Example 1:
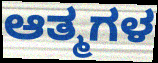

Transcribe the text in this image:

ಆತ್ಮಗಳ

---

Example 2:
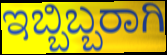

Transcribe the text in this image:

ಇಬ್ಬಿಬ್ಬರಾಗಿ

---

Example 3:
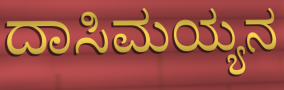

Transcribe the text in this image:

ದಾಸಿಮಯ್ಯನ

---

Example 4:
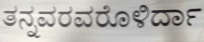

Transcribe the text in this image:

ತನ್ನವರವರೊಳಿರ್ದಾ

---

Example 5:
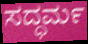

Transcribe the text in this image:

ಸದ್ಧರ್ಮ